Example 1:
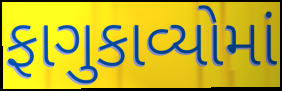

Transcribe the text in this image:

ફાગુકાવ્યોમાં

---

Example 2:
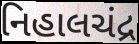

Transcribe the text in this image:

નિહાલચંદ્ર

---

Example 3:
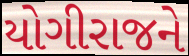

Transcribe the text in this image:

યોગીરાજને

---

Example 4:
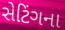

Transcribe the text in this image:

સેટિંગના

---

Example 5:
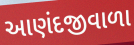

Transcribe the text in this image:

આણંદજીવાળા